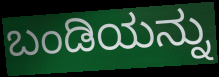
ಬಂಡಿಯನ್ನು